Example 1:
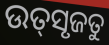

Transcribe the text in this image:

ଉତ୍‌ସୃଜତୁ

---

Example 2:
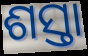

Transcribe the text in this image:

ଶସ୍ତା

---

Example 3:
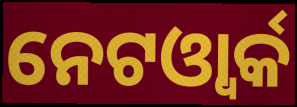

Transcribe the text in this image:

ନେଟଓ୍ବାର୍କ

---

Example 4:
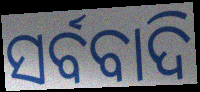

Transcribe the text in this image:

ସର୍ବବାଦି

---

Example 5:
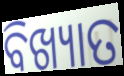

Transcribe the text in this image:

ବିଖ୍ୟାତ